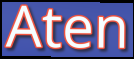
Aten